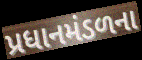
પ્રધાનમંડળના